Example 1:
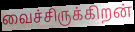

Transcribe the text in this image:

வைச்சிருக்கிறன்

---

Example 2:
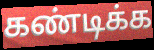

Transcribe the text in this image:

கண்டிக்க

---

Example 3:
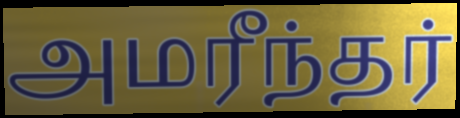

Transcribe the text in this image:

அமரீந்தர்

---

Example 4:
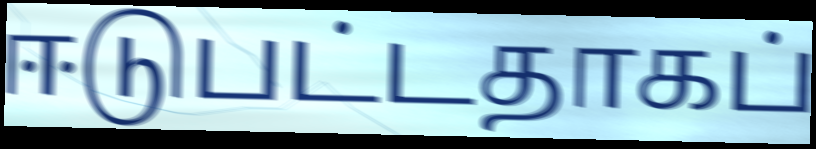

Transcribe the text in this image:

ஈடுபட்டதாகப்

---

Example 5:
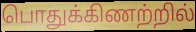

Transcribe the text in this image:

பொதுக்கிணற்றில்